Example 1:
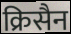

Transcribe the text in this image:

क्रिसैन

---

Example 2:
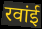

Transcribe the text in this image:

रवांई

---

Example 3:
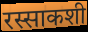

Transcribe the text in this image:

रस्साकशी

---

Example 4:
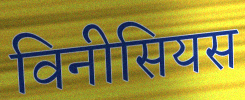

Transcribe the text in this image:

विनीसियस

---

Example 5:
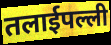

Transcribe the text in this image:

तलाईपल्ली